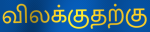
விலக்குதற்கு